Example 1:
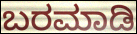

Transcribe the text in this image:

ಬರಮಾಡಿ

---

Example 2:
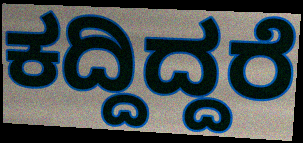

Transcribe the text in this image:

ಕದ್ದಿದ್ದರೆ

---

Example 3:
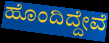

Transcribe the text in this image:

ಹೊಂದಿದ್ದೇವೆ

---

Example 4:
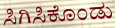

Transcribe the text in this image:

ಸಿಗಿಸಿಕೊಂಡು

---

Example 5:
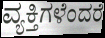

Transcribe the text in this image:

ವ್ಯಕ್ತಿಗಳೆಂದರೆ